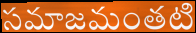
సమాజమంతటి